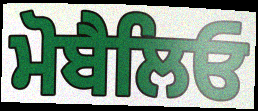
ਮੋਬੈਲਿਓ